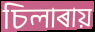
চিলাৰায়